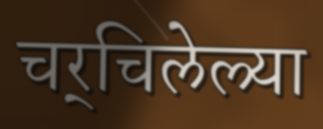
चर्चिलेल्या